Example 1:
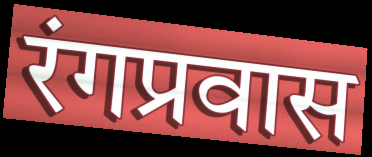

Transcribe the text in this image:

रंगप्रवास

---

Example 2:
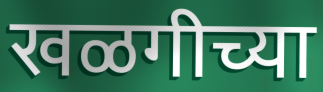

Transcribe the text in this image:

खळगीच्या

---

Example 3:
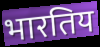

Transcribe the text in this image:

भारतिय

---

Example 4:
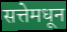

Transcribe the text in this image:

सत्तेमधून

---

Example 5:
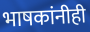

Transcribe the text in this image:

भाषकांनीही